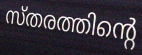
സ്തരത്തിന്റെ